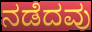
ನಡೆದವು